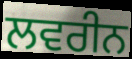
ਲਵਰੀਨ